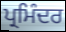
ਪ੍ਰਮਿੰਦਰ